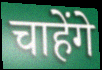
चाहेंगे